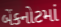
બેંકનોટમાં